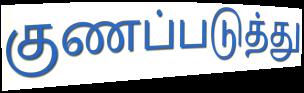
குணப்படுத்து